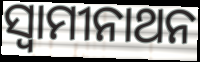
ସ୍ବାମୀନାଥନ